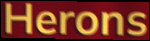
Herons